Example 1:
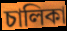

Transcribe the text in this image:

চালিকা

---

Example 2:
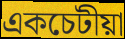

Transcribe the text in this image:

একচেটীয়া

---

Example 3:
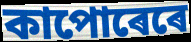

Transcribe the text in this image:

কাপোৰেৰে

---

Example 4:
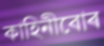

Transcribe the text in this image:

কাহিনীবোৰ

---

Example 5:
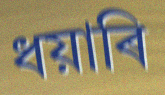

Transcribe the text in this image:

ধয়াৰি